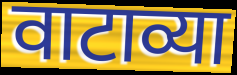
वाटाव्या